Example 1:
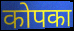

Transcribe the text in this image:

कोपका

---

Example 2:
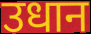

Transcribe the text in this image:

उधान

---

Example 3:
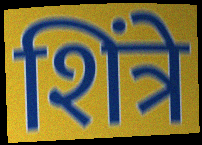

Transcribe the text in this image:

शिंत्रे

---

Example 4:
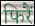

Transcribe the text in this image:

फिरैं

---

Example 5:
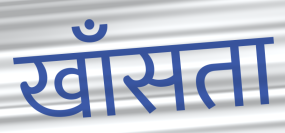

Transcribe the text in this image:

खाँसता